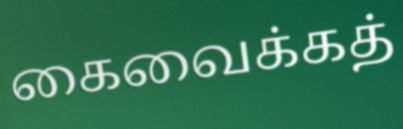
கைவைக்கத்